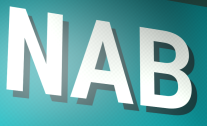
NAB